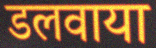
डलवाया